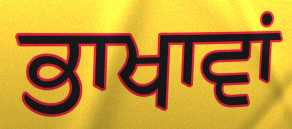
ਭਾਖਾਵਾਂ